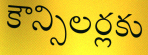
కౌన్సిలర్లకు